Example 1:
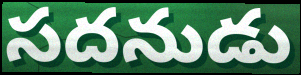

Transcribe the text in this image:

సదనుడు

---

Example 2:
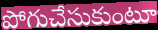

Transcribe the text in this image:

పోగుచేసుకుంటూ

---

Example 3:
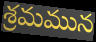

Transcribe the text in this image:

శ్రమమున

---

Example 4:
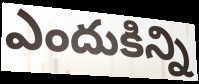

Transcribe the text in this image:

ఎందుకిన్ని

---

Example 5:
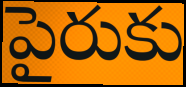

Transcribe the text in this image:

పైరుకు